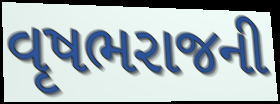
વૃષભરાજની